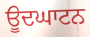
ਊਦਘਾਟਨ